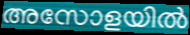
അസോളയിൽ